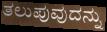
ತಲುಪುವುದನ್ನು